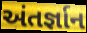
અંતર્જ્ઞાન